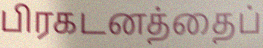
பிரகடனத்தைப்